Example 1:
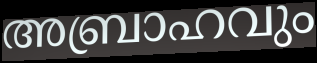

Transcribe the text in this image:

അബ്രാഹവും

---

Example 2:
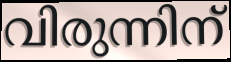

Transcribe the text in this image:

വിരുന്നിന്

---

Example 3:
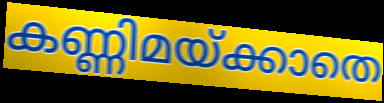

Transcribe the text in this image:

കണ്ണിമയ്ക്കാതെ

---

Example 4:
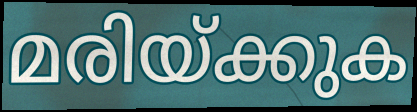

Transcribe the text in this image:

മരിയ്ക്കുക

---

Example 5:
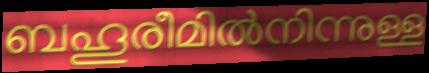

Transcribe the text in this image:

ബഹൂരീമിൽനിന്നുള്ള